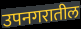
उपनगरातील